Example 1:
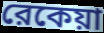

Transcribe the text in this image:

রেকেয়া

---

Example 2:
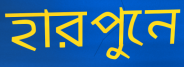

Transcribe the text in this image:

হারপুনে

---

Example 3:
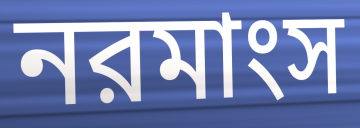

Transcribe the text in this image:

নরমাংস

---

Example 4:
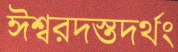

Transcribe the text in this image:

ঈশ্বরদস্তদর্থং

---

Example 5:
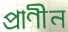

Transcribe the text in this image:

প্রাণীন